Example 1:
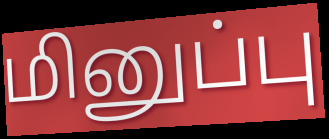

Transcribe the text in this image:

மினுப்பு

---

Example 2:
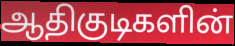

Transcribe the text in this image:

ஆதிகுடிகளின்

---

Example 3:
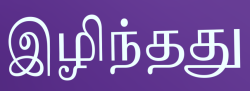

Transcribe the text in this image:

இழிந்தது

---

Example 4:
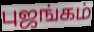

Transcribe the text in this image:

புஜங்கம்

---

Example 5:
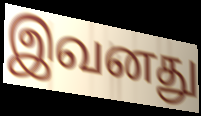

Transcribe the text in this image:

இவனது